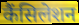
कैंसिलेशन